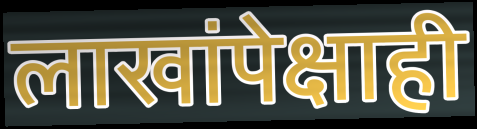
लाखांपेक्षाही